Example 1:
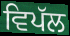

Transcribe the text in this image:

ਵਿਪੱਲ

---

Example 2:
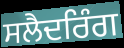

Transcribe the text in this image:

ਸਲੈਦਰਿੰਗ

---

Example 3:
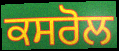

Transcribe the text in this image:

ਕਸਰੋਲ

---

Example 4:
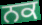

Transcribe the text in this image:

ਨਕ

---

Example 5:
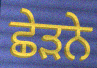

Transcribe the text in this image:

ਛੇੜਨੇ